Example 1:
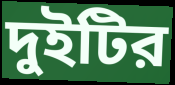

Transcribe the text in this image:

দুইটির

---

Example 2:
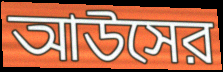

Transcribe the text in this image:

আউসের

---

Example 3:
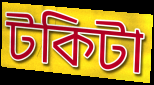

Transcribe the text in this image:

টকিটা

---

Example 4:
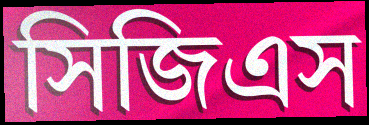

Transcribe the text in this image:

সিজিএস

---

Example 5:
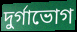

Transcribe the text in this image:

দুর্গাভোগ